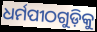
ଧର୍ମପୀଠଗୁଡ଼ିକୁ